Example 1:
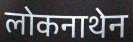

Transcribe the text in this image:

लोकनाथेन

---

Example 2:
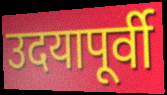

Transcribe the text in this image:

उदयापूर्वी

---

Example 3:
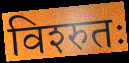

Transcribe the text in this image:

विश्रुतः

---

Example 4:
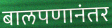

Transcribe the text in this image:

बालपणानंतर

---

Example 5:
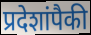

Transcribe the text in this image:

प्रदेशांपैकी